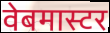
वेबमास्टर